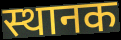
स्थानक